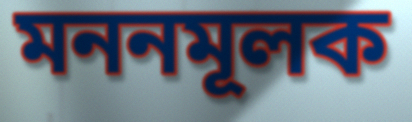
মননমূলক